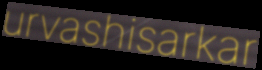
urvashisarkar